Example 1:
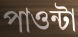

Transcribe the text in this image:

পাওন্টা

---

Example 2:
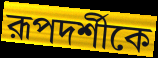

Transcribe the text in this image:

রূপদর্শীকে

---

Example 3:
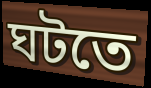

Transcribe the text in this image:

ঘটতে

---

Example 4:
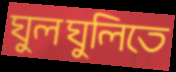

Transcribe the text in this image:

ঘুলঘুলিতে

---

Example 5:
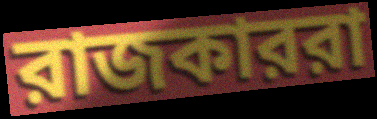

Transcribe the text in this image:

রাজকাররা